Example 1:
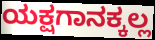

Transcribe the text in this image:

ಯಕ್ಷಗಾನಕ್ಕಲ್ಲ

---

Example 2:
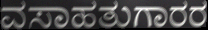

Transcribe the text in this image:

ವಸಾಹತುಗಾರರ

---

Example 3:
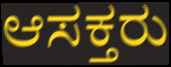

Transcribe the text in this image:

ಆಸಕ್ತರು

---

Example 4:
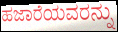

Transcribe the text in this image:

ಹಜಾರೆಯವರನ್ನು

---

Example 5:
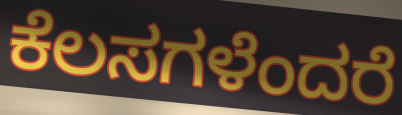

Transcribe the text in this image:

ಕೆಲಸಗಳೆಂದರೆ